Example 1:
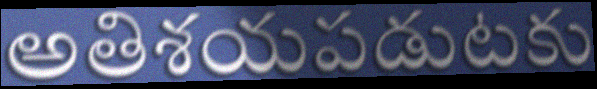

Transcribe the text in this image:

అతిశయపడుటకు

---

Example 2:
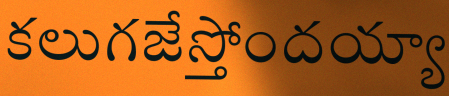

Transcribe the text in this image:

కలుగజేస్తోందయ్యా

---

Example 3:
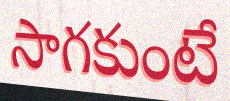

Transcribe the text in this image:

సాగకుంటే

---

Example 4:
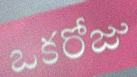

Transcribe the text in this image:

ఒకరోజు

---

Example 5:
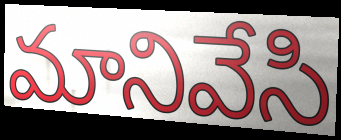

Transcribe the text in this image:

మానివేసి